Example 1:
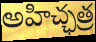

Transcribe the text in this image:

అహిచ్ఛత్ర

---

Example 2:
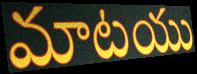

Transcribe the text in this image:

మాటయు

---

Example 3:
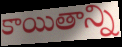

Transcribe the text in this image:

కాయితాన్ని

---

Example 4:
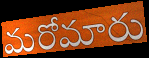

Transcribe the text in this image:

మరోమారు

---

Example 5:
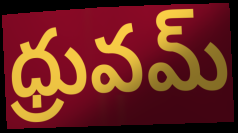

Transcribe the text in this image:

ధ్రువమ్